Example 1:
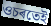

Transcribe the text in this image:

ওচৰতেই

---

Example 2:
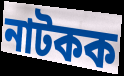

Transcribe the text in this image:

নাটকক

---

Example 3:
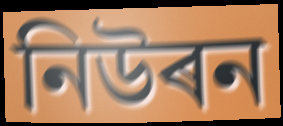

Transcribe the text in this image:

নিউৰন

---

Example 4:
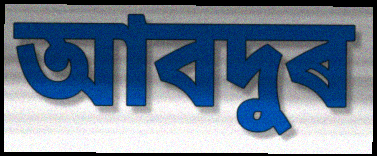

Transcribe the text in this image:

আবদুৰ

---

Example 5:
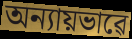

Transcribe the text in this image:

অন্যায়ভাৱে